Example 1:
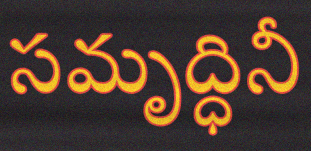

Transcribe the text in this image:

సమృద్ధినీ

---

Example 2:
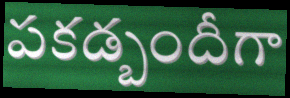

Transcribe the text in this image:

పకడ్బందీగా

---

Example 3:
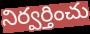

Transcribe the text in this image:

నిర్వర్తించు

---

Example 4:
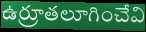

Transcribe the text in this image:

ఉర్రూతలూగించేవి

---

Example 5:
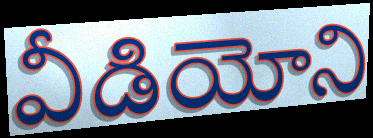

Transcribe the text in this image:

వీడియోని